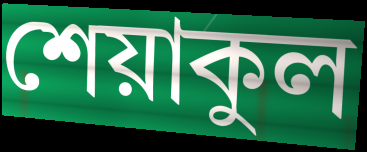
শেয়াকুল